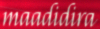
maadidira